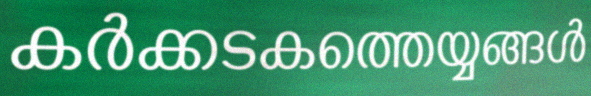
കർക്കടകത്തെയ്യങ്ങൾ